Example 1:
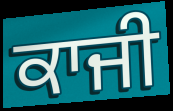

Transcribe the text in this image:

ਕਾਜੀ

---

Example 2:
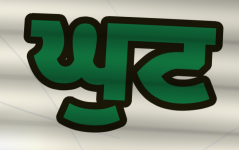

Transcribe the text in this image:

ਘੁਟ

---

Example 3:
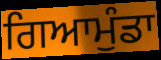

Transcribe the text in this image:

ਗਿਆਮੁੰਡਾ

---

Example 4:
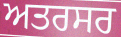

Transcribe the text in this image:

ਅਤਰਸਰ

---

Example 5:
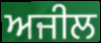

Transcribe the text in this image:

ਅਜੀਲ